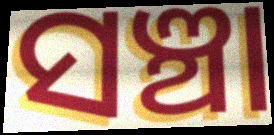
ସଞ୍ଚା